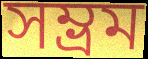
সম্ভ্রম